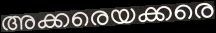
അക്കരെയക്കരെ